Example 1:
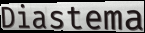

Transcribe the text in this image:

Diastema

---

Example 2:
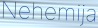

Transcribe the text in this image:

Nehemija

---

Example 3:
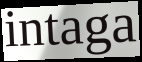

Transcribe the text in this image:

intaga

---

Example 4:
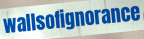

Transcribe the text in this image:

wallsofignorance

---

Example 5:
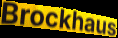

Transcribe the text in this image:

Brockhaus